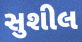
સુશીલ